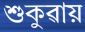
শুকুৱায়